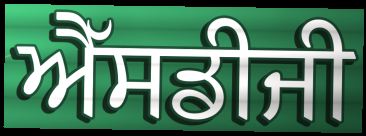
ਐੱਸਡੀਜੀ